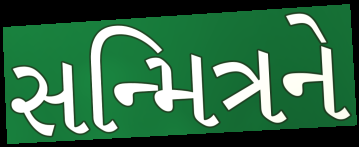
સન્મિત્રને